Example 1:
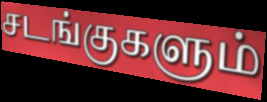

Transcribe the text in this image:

சடங்குகளும்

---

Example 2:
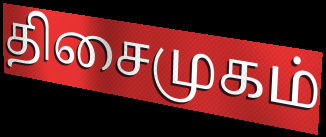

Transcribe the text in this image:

திசைமுகம்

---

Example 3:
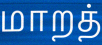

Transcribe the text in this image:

மாறத்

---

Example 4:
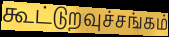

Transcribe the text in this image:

கூட்டுறவுச்சங்கம்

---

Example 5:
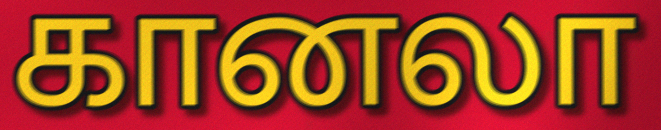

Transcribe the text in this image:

கானலா